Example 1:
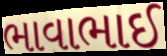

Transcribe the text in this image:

ભાવાભાઈ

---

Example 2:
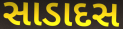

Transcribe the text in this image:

સાડાદસ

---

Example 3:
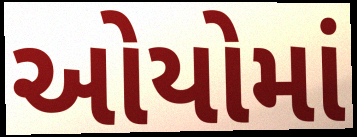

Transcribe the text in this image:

ઓયોમાં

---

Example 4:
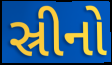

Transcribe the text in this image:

સ્રીનો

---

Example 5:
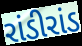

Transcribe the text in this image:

રાંડીરાંડ